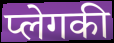
प्लेगकी